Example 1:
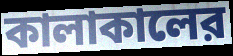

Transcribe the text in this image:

কালাকালের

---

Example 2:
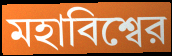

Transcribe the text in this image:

মহাবিশ্বের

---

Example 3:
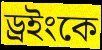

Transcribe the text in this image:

ড্রইংকে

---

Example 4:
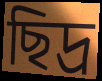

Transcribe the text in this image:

ছিদ্র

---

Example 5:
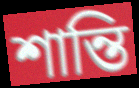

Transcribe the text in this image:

শান্তি